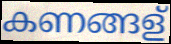
കണങ്ങള്